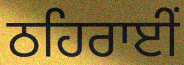
ਠਹਿਰਾਈਂ